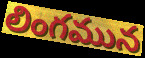
లింగమున